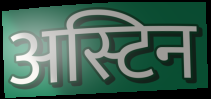
अस्टिन